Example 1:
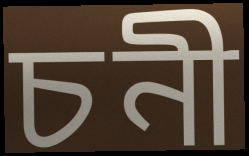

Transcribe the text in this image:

চনী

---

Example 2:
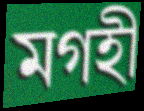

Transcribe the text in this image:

মগহী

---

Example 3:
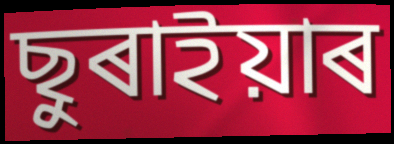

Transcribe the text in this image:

ছুৰাইয়াৰ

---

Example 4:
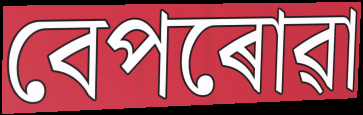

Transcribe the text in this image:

বেপৰোৱা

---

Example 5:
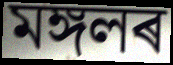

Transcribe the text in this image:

মঙ্গলৰ